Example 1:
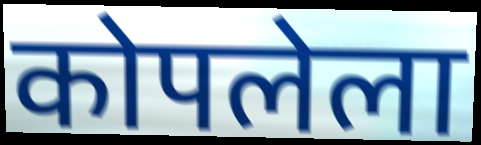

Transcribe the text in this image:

कोपलेला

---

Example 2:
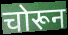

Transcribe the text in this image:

चोरून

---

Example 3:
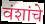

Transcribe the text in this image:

वंशांचे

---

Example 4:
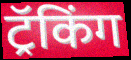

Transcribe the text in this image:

ट्रॅकिंग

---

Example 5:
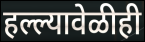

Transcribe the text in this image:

हल्ल्यावेळीही